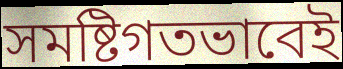
সমষ্টিগতভাবেই